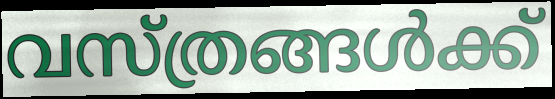
വസ്ത്രങ്ങൾക്ക്